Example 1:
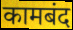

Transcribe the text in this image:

कामबंद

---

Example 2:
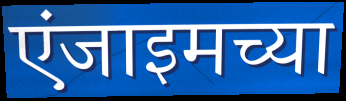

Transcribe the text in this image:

एंजाइमच्या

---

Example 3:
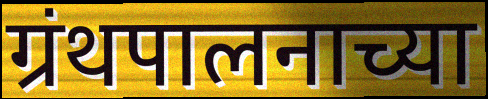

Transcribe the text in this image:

ग्रंथपालनाच्या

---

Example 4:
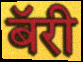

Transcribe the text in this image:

बॅरी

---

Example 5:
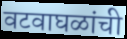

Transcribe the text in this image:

वटवाघळांची